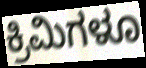
ಕ್ರಿಮಿಗಳೂ